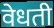
वेधती